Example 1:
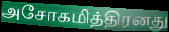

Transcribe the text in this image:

அசோகமித்திரனது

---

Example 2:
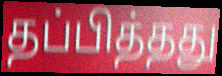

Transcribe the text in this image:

தப்பித்தது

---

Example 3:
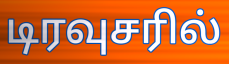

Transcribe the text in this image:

டிரவுசரில்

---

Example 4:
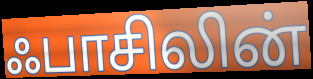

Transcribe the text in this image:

ஃபாசிலின்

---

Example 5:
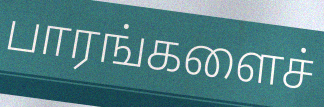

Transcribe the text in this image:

பாரங்களைச்